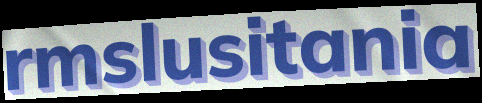
rmslusitania